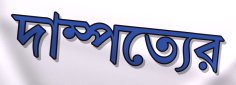
দাম্পত্যের